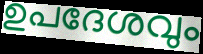
ഉപദേശവും